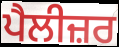
ਪੈਲੀਜ਼ਰ